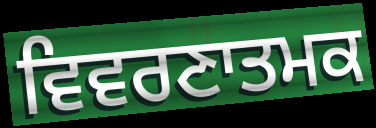
ਵਿਵਰਣਾਤਮਕ